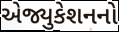
એજ્યુકેશનનો